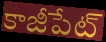
కాజీపేట్